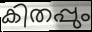
കിതപ്പും